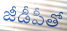
జీడీపీతో